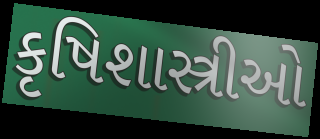
કૃષિશાસ્ત્રીઓ